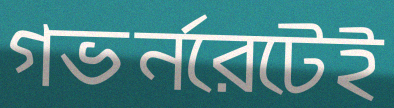
গভর্নরেটেই